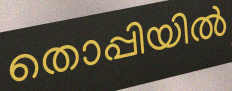
തൊപ്പിയിൽ